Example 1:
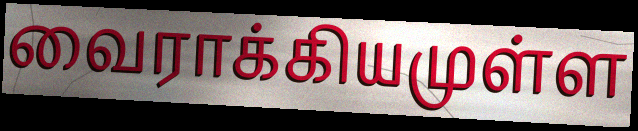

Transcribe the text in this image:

வைராக்கியமுள்ள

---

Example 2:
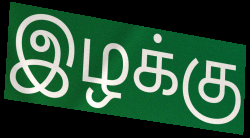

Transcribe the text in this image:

இழக்கு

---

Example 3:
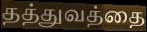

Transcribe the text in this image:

தத்துவத்தை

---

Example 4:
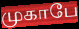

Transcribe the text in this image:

முகாபே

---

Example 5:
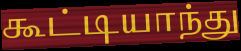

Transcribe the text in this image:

கூட்டியாந்து